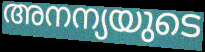
അനന്യയുടെ